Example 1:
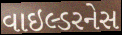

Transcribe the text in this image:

વાઇલ્ડરનેસ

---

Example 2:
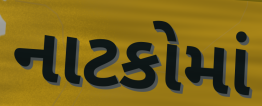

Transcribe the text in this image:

નાટકોમાં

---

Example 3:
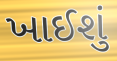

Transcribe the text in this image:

ખાઈશું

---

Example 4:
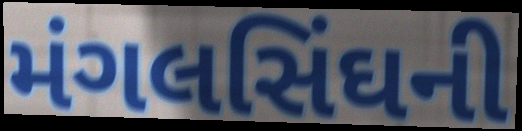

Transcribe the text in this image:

મંગલસિંઘની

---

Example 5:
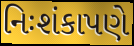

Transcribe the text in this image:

નિઃશંકાપણે